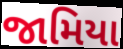
જામિયા